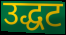
उद्धट